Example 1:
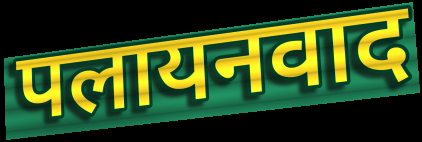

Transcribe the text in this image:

पलायनवाद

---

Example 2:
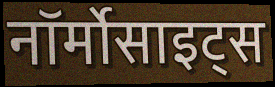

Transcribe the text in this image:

नॉर्मोसाइट्स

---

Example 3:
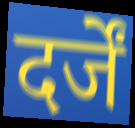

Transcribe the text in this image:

दर्जें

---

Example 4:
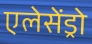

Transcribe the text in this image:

एलेसेंड्रो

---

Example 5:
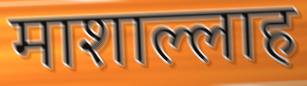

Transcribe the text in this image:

माशाल्लाह